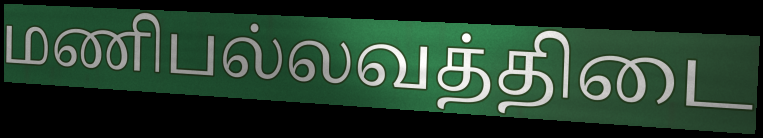
மணிபல்லவத்திடை